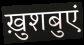
ख़ुशबुएं